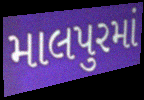
માલપુરમાં